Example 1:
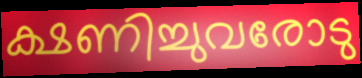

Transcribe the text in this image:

ക്ഷണിച്ചുവരോടു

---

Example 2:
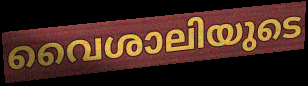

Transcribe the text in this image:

വൈശാലിയുടെ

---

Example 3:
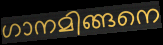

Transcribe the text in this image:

ഗാനമിങ്ങനെ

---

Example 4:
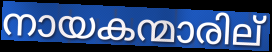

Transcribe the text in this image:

നായകന്മാരില്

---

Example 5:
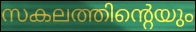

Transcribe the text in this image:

സകലത്തിന്റെയും